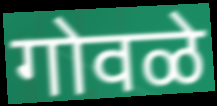
गोवळे